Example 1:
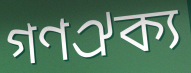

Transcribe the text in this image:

গণঐক্য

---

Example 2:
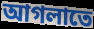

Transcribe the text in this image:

আগলাতে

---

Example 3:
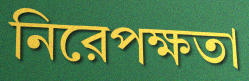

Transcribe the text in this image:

নিরেপক্ষতা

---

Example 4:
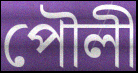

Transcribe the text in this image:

পৌলী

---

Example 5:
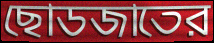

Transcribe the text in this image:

ছোডজাতের